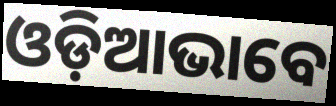
ଓଡ଼ିଆଭାବେ